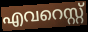
എവറെസ്റ്റ്